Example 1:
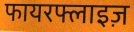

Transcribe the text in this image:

फायरफ्लाइज़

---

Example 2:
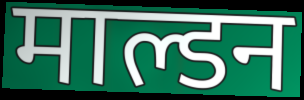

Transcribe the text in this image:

माल्डन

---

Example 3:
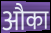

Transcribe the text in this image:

औका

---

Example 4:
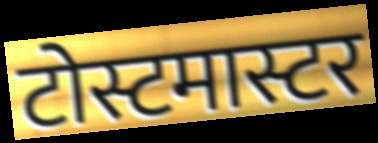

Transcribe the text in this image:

टोस्टमास्टर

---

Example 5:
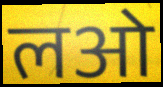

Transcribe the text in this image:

लओ